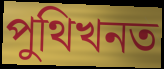
পুথিখনত